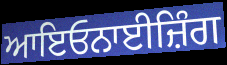
ਆਇਓਨਾਈਜ਼ਿੰਗ